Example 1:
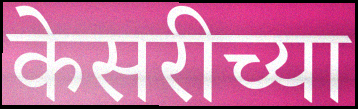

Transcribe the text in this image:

केसरीच्या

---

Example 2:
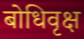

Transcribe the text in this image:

बोधिवृक्ष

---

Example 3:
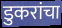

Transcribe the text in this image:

डुकरांचा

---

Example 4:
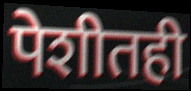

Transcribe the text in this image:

पेशीतही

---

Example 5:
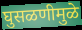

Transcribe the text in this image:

घुसळणीमुळे